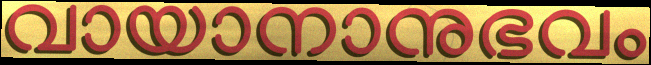
വായാനാനുഭവം